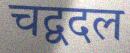
चद्वदल